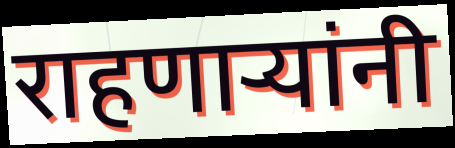
राहणार्‍यांनी